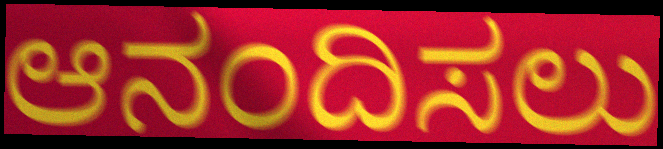
ಆನಂದಿಸಲು